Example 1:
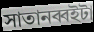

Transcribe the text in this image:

সাতানব্বইটা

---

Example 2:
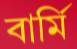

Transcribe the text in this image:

বার্মি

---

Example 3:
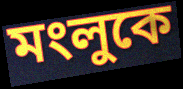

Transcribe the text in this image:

মংলুকে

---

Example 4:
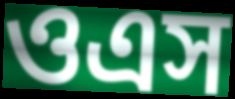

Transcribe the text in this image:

ওএস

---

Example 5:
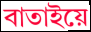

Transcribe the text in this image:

বাতাইয়ে